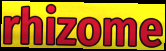
rhizome